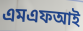
এমএফআই